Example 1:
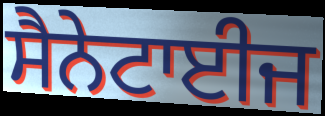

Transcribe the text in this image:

ਸੈਨੇਟਾਈਜ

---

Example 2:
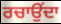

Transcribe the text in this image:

ਰਚਾਉਂਦਾ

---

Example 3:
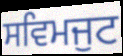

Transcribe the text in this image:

ਸਵਿਮਜੁਟ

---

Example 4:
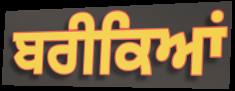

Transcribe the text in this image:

ਬਰੀਕਿਆਂ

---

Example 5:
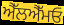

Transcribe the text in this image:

ਐੱਲਐੱਮਓ